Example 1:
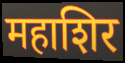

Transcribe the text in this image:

महाशिर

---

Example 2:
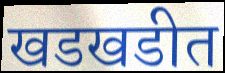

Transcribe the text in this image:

खडखडीत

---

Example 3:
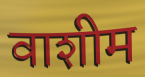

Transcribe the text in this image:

वाशीम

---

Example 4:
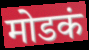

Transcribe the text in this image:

मोडकं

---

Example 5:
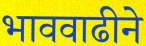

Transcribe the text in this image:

भाववाढीने